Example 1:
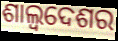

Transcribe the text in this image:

ଶାଲ୍ୱଦେଶର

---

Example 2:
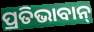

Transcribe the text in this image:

ପ୍ରତିଭାବାନ୍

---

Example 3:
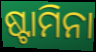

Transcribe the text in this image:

ଷ୍ଟାମିନା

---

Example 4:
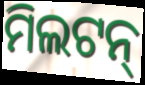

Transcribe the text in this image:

ମିଲଟନ୍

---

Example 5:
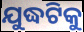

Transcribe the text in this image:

ଯୁଦ୍ଧଟିକୁ